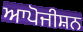
ਆਪੋਜੀਸ਼ਨ